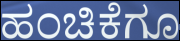
ಹಂಚಿಕೆಗೂ